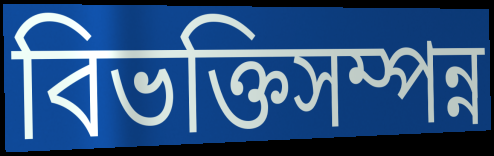
বিভক্তিসম্পন্ন